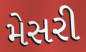
મેસરી